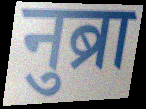
नुब्रा